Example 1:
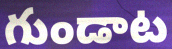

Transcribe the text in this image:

గుండాట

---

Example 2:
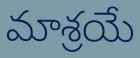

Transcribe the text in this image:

మాశ్రయే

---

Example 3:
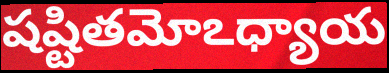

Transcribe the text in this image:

షష్టితమోఽధ్యాయ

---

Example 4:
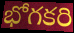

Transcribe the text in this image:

భోగకరి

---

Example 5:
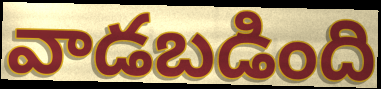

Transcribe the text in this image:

వాడబడింది